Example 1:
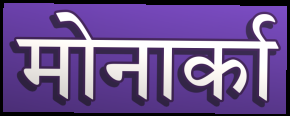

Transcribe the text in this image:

मोनार्का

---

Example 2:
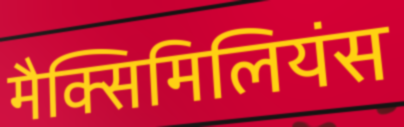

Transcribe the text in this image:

मैक्सिमिलियंस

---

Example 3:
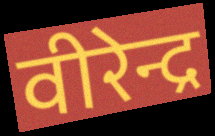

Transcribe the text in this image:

वीरेन्द्र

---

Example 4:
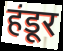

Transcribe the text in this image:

हंडूर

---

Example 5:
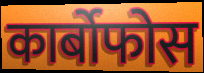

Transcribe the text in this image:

कार्बोफोस